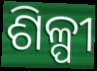
ଶିଳ୍ପୀ